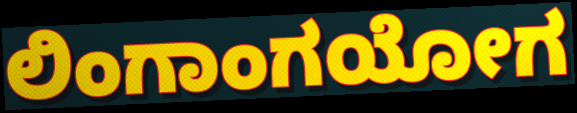
ಲಿಂಗಾಂಗಯೋಗ